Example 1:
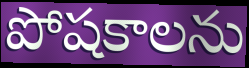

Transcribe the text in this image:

పోషకాలను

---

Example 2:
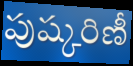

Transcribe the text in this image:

పుష్కరిణీ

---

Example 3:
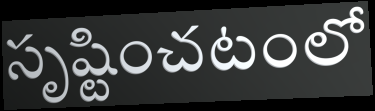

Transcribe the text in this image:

సృష్టించటంలో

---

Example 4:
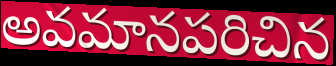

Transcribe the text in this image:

అవమానపరిచిన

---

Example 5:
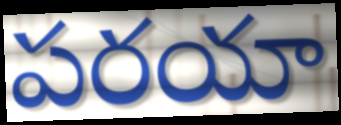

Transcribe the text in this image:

పరయా